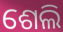
ଶେଲି